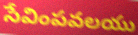
సేవింపవలయు